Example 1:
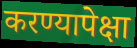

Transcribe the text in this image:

करण्यापेक्षा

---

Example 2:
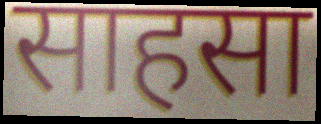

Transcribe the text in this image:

साहसा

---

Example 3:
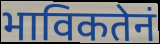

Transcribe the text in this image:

भाविकतेनं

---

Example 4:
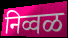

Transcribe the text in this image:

निव्वळ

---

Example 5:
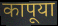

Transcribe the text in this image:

कापूया